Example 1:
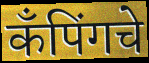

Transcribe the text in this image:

कँपिंगचे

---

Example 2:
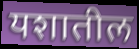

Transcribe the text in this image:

यशातील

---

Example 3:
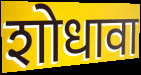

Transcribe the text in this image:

शोधावा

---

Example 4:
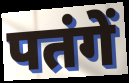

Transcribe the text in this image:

पतंगें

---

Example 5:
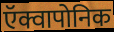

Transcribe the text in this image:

ऍक्वापोनिक